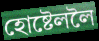
হোষ্টেললৈ